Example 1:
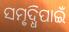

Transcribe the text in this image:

ସମୃଦ୍ଧିପାଇଁ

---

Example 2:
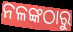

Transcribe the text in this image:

ନଳଙ୍କଠାରୁ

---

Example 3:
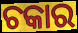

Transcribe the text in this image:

ଚକାର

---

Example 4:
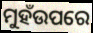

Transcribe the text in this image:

ମୁହଁଉପରେ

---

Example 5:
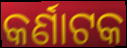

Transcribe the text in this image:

କର୍ଣାଟକ